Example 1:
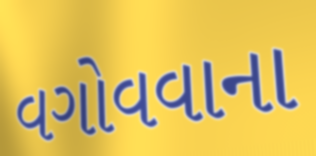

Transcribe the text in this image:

વગોવવાના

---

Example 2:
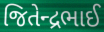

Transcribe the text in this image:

જિતેન્દ્રભાઈ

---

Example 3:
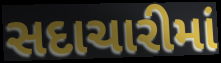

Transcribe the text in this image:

સદાચારીમાં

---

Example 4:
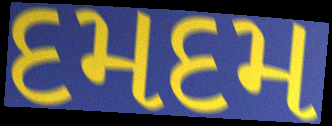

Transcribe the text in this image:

દમદમ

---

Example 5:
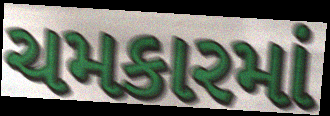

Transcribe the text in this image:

ચમકારમાં